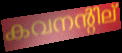
കവനന്റില്